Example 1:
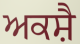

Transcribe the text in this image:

ਅਕਸ਼ੈ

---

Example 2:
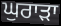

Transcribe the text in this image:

ਘੁਰਾੜਾ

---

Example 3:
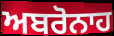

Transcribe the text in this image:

ਅਬਰੋਨਾਹ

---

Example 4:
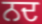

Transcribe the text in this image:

ਨਦ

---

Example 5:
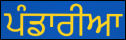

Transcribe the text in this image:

ਪੰਡਾਰੀਆ